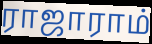
ராஜாராம்